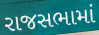
રાજસભામાં